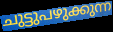
ചുട്ടുപഴുക്കുന്ന